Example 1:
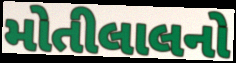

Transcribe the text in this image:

મોતીલાલનો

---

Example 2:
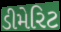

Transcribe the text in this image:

ડીમેરિટ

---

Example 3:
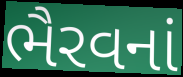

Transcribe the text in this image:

ભૈરવનાં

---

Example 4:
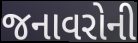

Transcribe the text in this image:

જનાવરોની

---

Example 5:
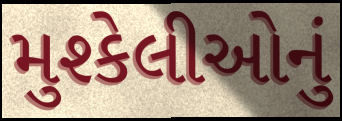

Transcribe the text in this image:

મુશ્કેલીઓનું